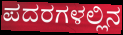
ಪದರಗಳಲ್ಲಿನ